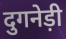
दुगनेड़ी